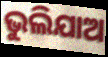
ଭୁଲିଯାଅ